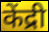
केंद्री